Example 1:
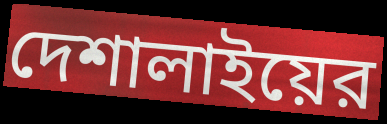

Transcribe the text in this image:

দেশালাইয়ের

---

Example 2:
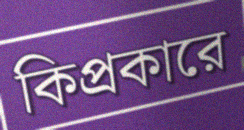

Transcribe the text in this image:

কিপ্রকারে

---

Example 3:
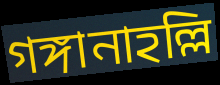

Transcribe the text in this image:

গঙ্গানাহল্লি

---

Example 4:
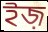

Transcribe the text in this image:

ইজ়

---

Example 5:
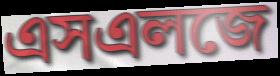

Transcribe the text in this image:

এসএলজে